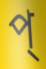
প্